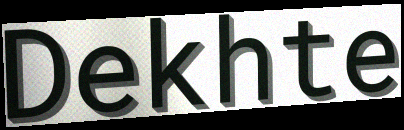
Dekhte